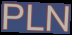
PLN